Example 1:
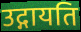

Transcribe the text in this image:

उद्गायति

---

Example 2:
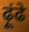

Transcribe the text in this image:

ढ़ूंढे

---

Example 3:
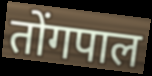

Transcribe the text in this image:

तोंगपाल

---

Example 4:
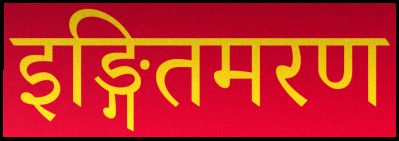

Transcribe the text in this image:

इङ्गितमरण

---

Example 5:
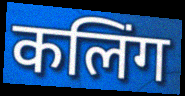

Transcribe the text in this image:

कलिंग